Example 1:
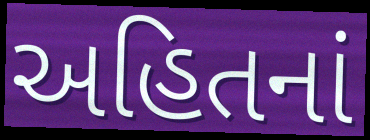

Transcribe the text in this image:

અહિતનાં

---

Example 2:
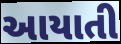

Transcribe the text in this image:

આયાતી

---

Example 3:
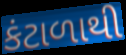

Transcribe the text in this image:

કંટાળાથી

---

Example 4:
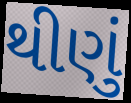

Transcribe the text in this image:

થીણું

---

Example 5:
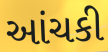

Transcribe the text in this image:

આંચકી